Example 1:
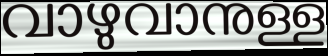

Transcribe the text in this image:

വാഴുവാനുള്ള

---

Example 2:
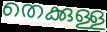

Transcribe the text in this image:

തെക്കുള്ള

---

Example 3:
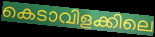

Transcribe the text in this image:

കെടാവിളക്കിലെ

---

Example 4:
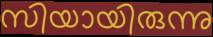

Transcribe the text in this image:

സിയായിരുന്നു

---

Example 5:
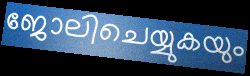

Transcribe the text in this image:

ജോലിചെയ്യുകയും